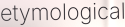
etymological